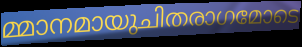
മ്മാനമായുചിതരാഗമോടെ